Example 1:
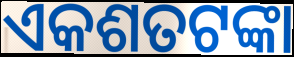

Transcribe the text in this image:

ଏକଶତଟଙ୍କା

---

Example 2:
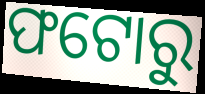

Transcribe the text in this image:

ଫଟୋରୁ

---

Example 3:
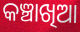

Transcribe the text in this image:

କଞ୍ଚାଖିଆ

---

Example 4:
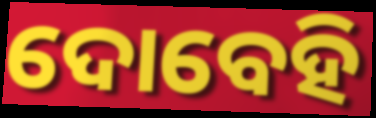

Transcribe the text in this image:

ଦୋବେହି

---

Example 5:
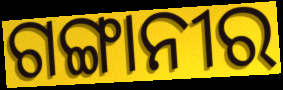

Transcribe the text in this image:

ଗଙ୍ଗାନୀର